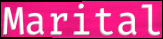
Marital